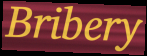
Bribery